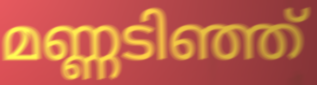
മണ്ണടിഞ്ഞ്